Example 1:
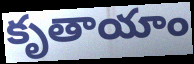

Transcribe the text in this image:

కృతాయాం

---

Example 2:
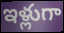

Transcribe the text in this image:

ఇళ్లుగా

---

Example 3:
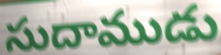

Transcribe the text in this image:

సుదాముడు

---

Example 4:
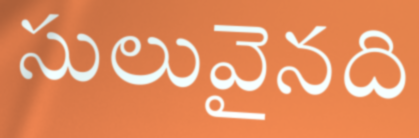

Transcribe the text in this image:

సులువైనది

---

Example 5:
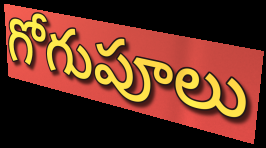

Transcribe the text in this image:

గోగుపూలు